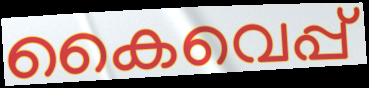
കൈവെപ്പ്